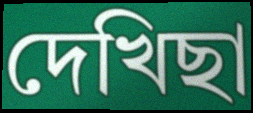
দেখিছা